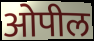
ओपील